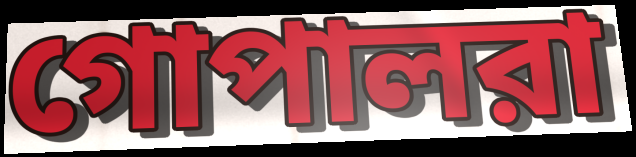
গোপালরা